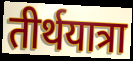
तीर्थयात्रा